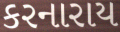
કરનારાય